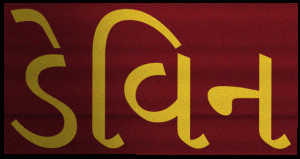
ડેવિન